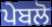
ਪੇਬਲੋ